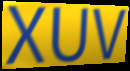
XUV